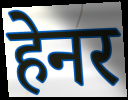
हेनर